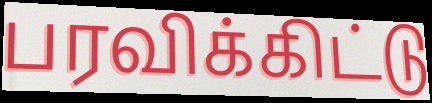
பரவிக்கிட்டு